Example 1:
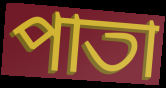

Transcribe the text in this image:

পাতা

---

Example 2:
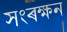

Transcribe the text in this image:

সংৰক্ষন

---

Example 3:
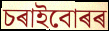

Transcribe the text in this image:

চৰাইবোৰৰ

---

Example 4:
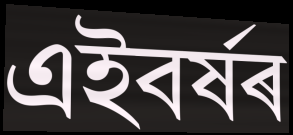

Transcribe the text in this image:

এইবৰ্ষৰ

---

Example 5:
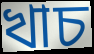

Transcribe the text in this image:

খাচ